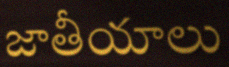
జాతీయాలు